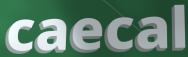
caecal